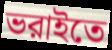
ভরাইতে